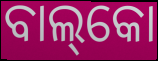
ବାଲ୍‌କୋ